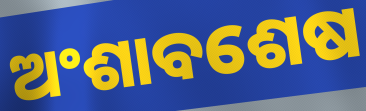
ଅଂଶାବଶେଷ